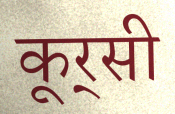
कूर्सी